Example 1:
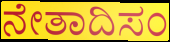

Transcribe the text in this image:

ನೇತಾದಿಸಂ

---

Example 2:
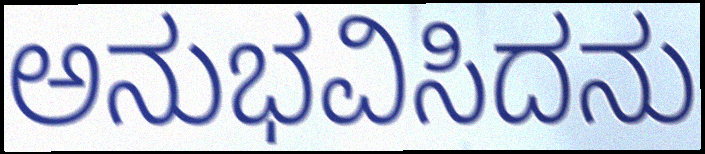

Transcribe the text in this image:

ಅನುಭವಿಸಿದನು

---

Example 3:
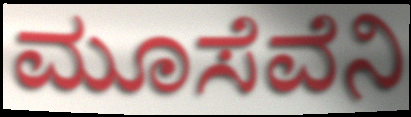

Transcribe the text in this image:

ಮೂಸೆವೆನಿ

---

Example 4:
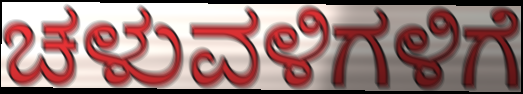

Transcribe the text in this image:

ಚಳುವಳಿಗಳಿಗೆ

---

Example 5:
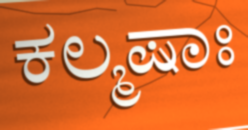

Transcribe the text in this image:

ಕಲ್ಮಷಾಃ